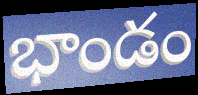
భాండం